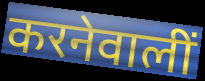
करनेवालीं